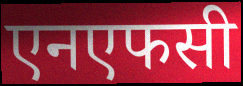
एनएफसी